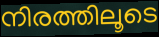
നിരത്തിലൂടെ